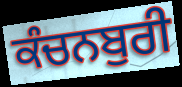
ਕੰਚਨਬੁਰੀ